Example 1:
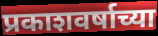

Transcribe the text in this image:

प्रकाशवर्षाच्या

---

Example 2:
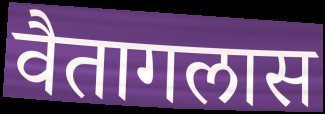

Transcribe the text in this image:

वैतागलास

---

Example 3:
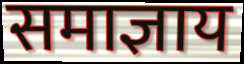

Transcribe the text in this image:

समाज्ञाय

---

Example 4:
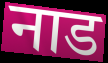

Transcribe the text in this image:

नाड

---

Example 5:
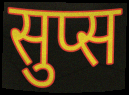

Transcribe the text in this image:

सुप्स